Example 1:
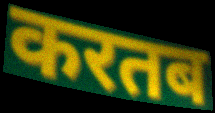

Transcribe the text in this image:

करतब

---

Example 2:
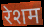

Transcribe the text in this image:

रेशम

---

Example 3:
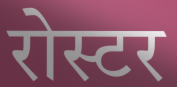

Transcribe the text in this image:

रोस्टर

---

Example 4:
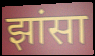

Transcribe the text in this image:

झांसा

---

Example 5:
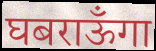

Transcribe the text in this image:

घबराऊँगा